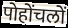
पोहोंचलों